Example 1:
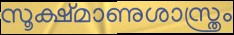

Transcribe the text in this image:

സൂക്ഷ്മാണുശാസ്ത്രം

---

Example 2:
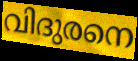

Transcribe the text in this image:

വിദുരനെ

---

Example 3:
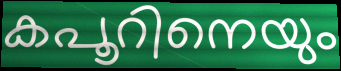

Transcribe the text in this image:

കപൂറിനെയും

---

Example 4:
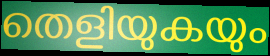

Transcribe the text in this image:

തെളിയുകയും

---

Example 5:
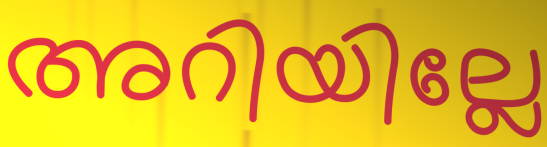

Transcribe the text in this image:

അറിയില്ലേ